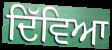
ਦਿੱਵਿਆ